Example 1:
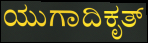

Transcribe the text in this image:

ಯುಗಾದಿಕೃತ್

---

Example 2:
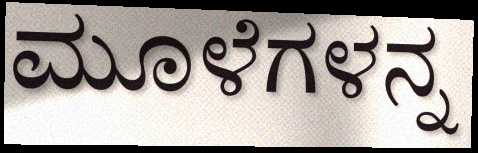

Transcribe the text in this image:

ಮೂಳೆಗಳನ್ನ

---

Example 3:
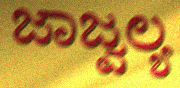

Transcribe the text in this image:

ಜಾಜ್ವಲ್ಯ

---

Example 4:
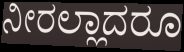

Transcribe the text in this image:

ನೀರಲ್ಲಾದರೂ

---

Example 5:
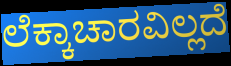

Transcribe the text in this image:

ಲೆಕ್ಕಾಚಾರವಿಲ್ಲದೆ